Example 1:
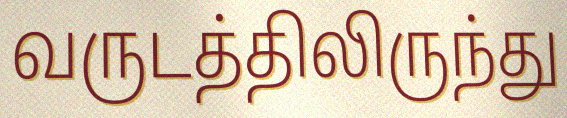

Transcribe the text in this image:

வருடத்திலிருந்து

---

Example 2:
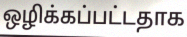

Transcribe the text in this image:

ஒழிக்கப்பட்டதாக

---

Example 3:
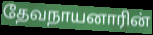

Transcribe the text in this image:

தேவநாயனாரின்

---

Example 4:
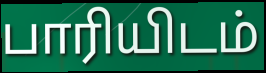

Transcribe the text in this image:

பாரியிடம்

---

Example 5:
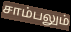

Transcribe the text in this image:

சாம்பலும்